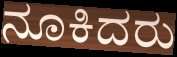
ನೂಕಿದರು